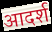
आदर्श